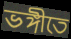
ভঙ্গীতে